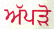
ਅੱਪੜੋ